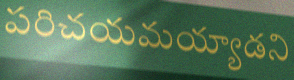
పరిచయమయ్యాడని